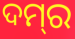
ଦମ୍‌ର